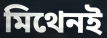
মিথেনই